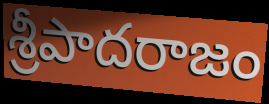
శ్రీపాదరాజం